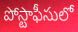
పోస్టాఫీసులో